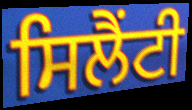
ਸਿਲੈਂਟੀ